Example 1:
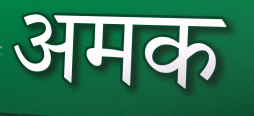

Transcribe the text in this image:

अमक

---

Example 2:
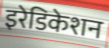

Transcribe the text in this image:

इरेडिकेशन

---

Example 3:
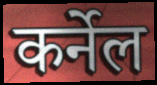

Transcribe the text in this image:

कर्नेल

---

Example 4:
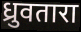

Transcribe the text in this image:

ध्रुवतारा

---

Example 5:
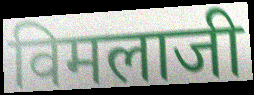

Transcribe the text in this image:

विमलाजी